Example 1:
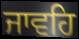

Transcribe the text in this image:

ਜਾਵਹਿ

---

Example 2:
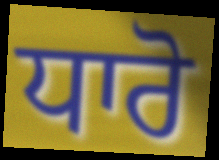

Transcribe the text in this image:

ਧਾਰੋ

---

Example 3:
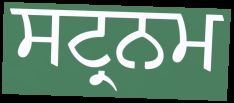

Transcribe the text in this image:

ਸਟ੍ਰਨਮ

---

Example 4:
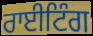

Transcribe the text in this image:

ਰਾਈਟਿੰਗ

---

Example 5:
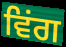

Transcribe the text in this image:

ਵਿਂਗ